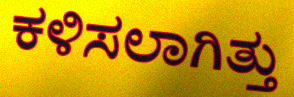
ಕಳಿಸಲಾಗಿತ್ತು